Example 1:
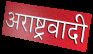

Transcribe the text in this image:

अराष्ट्रवादी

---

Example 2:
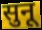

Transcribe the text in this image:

सुनू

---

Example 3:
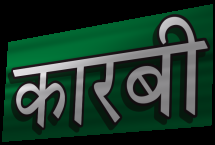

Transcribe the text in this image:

कारबी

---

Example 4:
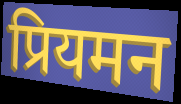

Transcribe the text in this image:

प्रियमन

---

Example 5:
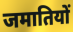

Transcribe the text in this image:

जमातियों